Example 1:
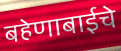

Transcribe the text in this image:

बहेणाबाईचे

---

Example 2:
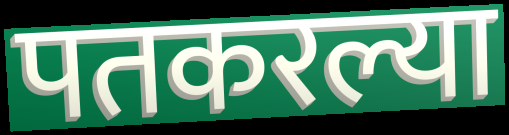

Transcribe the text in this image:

पतकरल्या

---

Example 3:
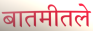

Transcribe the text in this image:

बातमीतले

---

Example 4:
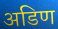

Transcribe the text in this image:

अडिण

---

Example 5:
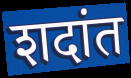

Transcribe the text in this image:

शदांत